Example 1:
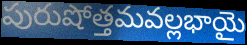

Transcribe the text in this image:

పురుషోత్తమవల్లభాయై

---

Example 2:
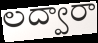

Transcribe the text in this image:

లద్వారా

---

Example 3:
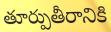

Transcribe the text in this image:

తూర్పుతీరానికి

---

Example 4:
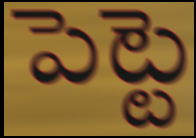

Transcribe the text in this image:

పెట్టె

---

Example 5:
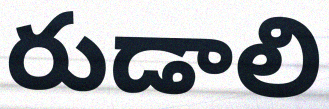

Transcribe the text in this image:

రుడాలి